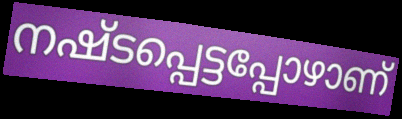
നഷ്ടപ്പെട്ടപ്പോഴാണ്